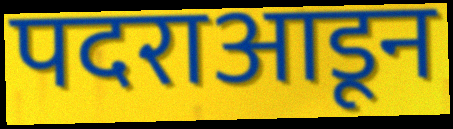
पदराआडून